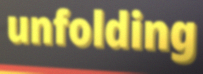
unfolding